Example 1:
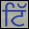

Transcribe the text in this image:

ਟਿੱ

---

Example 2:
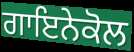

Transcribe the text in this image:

ਗਾਇਨੇਕੋਲ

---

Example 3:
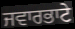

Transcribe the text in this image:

ਜਵਾਰਭਾਟੇ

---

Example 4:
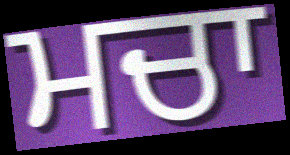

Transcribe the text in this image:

ਮਚਾ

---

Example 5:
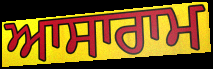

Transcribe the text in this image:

ਆਸਾਰਾਮ